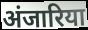
अंजारिया